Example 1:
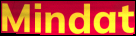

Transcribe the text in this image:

Mindat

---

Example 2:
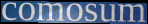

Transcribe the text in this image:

comosum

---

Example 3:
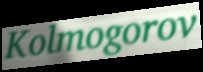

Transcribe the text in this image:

Kolmogorov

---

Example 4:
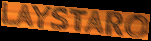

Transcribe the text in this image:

LAYSTARO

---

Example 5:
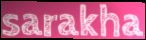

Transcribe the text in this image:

sarakha